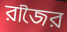
রাজৈর